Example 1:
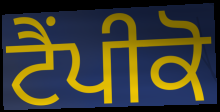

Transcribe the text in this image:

ਟੈਂਪੀਕੋ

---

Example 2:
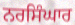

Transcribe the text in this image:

ਨਰਸਿੰਘਾਰ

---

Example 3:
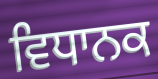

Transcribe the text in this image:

ਵਿਧਾਨਕ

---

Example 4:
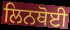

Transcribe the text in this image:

ਲਿਨਥੋਈ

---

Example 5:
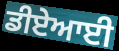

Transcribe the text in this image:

ਡੀਏਆਈ